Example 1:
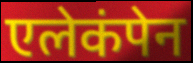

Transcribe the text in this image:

एलेकंपेन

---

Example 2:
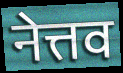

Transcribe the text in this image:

नेत्तव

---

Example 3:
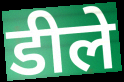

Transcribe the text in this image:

डीले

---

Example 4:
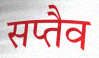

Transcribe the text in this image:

सप्तैव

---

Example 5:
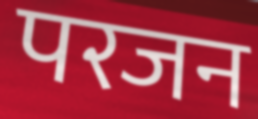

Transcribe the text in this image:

परजन